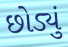
છોડ્યું